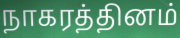
நாகரத்தினம்